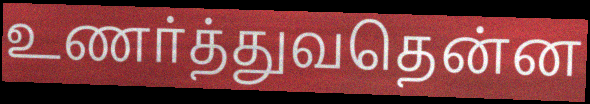
உணர்த்துவதென்ன